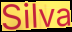
Silva